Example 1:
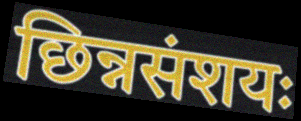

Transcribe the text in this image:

छिन्नसंशयः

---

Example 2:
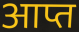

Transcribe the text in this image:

आप्त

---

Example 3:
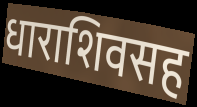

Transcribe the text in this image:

धाराशिवसह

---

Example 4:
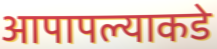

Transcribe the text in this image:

आपापल्याकडे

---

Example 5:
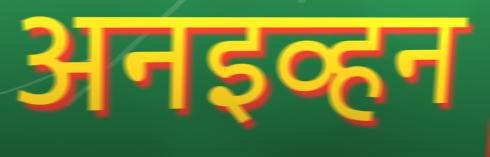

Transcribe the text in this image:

अनइव्हन